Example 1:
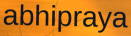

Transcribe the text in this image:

abhipraya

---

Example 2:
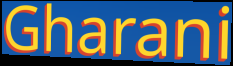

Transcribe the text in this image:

Gharani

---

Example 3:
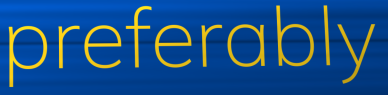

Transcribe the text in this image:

preferably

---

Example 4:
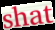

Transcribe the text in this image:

shat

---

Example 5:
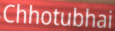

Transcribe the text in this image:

Chhotubhai